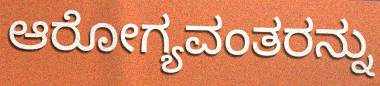
ಆರೋಗ್ಯವಂತರನ್ನು